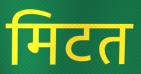
मिटत